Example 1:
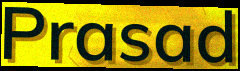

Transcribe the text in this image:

Prasad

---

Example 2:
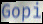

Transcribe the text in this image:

Gopi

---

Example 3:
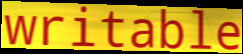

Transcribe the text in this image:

writable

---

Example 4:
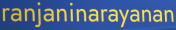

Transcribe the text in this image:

ranjaninarayanan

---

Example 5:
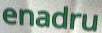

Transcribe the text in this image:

enadru